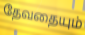
தேவதையும்